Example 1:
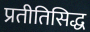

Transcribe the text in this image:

प्रतीतिसिद्ध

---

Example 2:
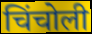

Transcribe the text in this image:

चिंचोली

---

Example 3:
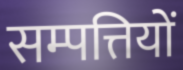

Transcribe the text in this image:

सम्‍पत्तियों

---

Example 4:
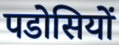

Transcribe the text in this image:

पडोसियों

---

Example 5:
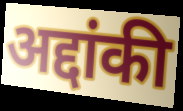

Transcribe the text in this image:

अद्दांकी